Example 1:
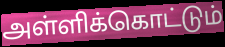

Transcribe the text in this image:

அள்ளிக்கொட்டும்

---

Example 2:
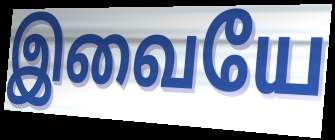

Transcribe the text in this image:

இவையே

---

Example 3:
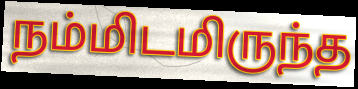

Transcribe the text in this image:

நம்மிடமிருந்த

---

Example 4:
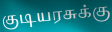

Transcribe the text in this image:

குடியரசுக்கு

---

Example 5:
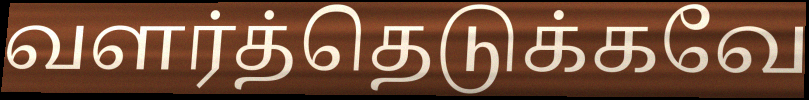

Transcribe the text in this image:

வளர்த்தெடுக்கவே